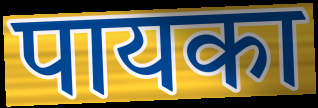
पायका